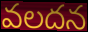
వలదన